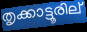
തൃക്കാട്ടൂരില്